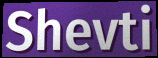
Shevti